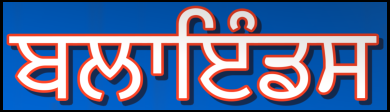
ਬਲਾਇੰਡਸ